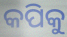
କପିକୁ